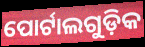
ପୋର୍ଟାଲଗୁଡ଼ିକ